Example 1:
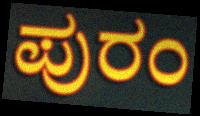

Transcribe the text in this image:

ಪುರಂ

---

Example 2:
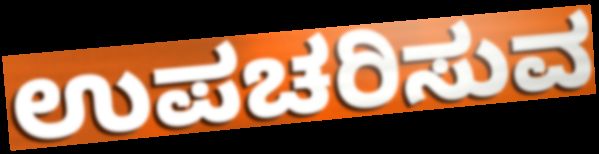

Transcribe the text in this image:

ಉಪಚರಿಸುವ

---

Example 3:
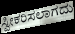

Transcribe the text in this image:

ಸ್ವೀಕರಿಸಲಾಗದು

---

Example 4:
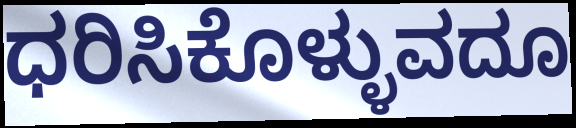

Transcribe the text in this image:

ಧರಿಸಿಕೊಳ್ಳುವದೂ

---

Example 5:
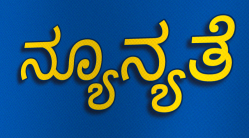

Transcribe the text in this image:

ನ್ಯೂನ್ಯತೆ